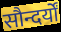
सौन्दर्यों